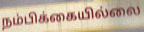
நம்பிக்கையில்லை